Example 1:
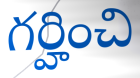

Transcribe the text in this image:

గర్హించి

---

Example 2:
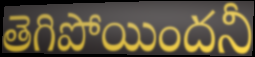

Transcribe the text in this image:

తెగిపోయిందనీ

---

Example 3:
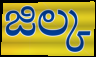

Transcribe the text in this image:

జిల్క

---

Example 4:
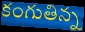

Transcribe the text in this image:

కంగుతిన్న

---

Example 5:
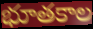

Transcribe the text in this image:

భూతకాల